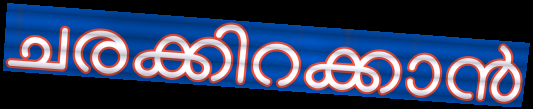
ചരക്കിറക്കാൻ